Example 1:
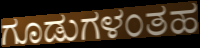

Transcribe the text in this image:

ಗೂಡುಗಳಂತಹ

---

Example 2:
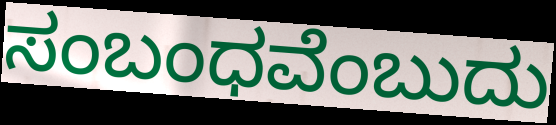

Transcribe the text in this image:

ಸಂಬಂಧವೆಂಬುದು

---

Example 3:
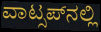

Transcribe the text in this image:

ವಾಟ್ಸಪ್‍ನಲ್ಲಿ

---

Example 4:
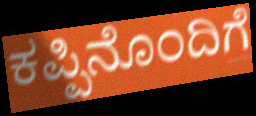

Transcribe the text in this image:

ಕಪ್ಪಿನೊಂದಿಗೆ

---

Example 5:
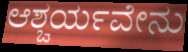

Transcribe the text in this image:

ಆಶ್ಚರ್ಯವೇನು